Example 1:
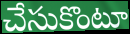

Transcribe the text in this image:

చేసుకొంటూ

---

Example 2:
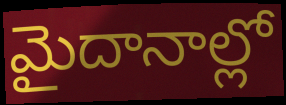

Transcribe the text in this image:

మైదానాల్లో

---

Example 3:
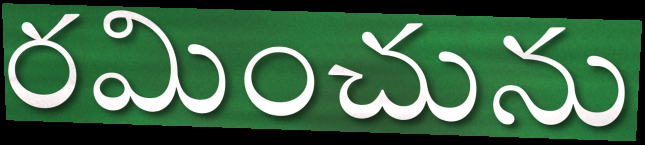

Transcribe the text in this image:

రమించును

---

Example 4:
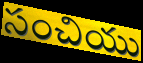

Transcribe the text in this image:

సంచియు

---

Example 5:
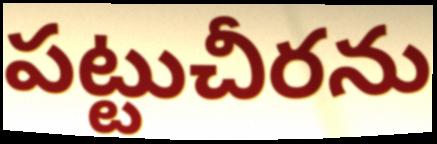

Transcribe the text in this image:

పట్టుచీరను